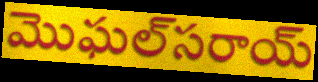
మొఘల్‌సరాయ్